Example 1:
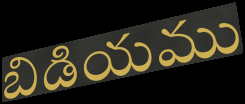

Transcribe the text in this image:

బిడియము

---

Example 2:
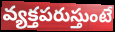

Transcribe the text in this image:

వ్యక్తపరుస్తుంటే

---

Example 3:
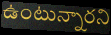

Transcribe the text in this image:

ఉంటున్నారని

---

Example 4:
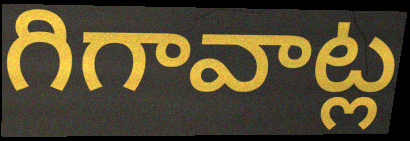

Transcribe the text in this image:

గిగావాట్ల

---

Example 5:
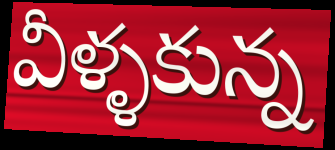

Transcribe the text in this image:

వీళ్ళకున్న